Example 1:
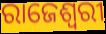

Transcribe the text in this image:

ରାଜେଶ୍ଵରୀ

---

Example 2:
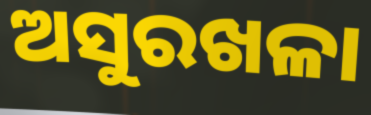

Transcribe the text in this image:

ଅସୁରଖଳା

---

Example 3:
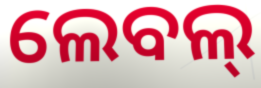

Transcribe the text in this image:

ଲେବଲ୍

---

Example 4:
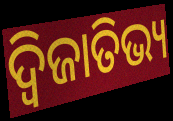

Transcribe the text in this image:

ଦ୍ବିଜାତିଭ୍ୟ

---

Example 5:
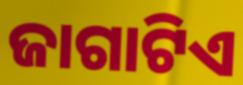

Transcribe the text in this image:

ଜାଗାଟିଏ